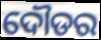
ଦୌଡର